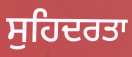
ਸੁਹਿਦਰਤਾ